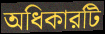
অধিকারটি